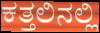
ಕತ್ತಲಿನಲ್ಲಿ